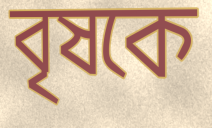
বৃষকে